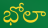
భోలా